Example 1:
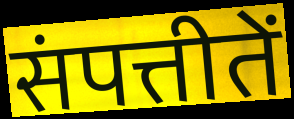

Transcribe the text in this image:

संपत्तीतें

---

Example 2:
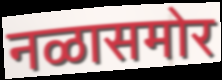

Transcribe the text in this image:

नळासमोर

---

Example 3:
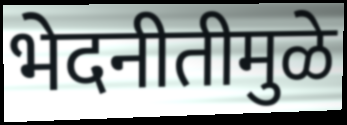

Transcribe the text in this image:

भेदनीतीमुळे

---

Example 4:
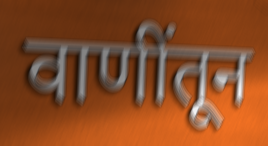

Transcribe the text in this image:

वाणींतून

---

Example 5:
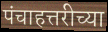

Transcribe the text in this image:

पंचाहत्तरीच्या